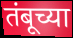
तंबूच्या